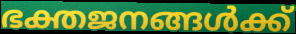
ഭക്തജനങ്ങൾക്ക്